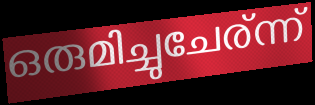
ഒരുമിച്ചുചേര്ന്ന്